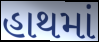
હાથમાં